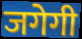
जगेगी